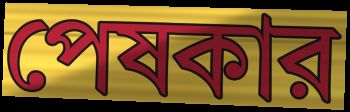
পেষকার